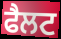
ਫੈਲਟ